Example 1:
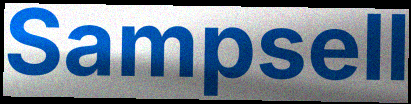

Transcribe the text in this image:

Sampsell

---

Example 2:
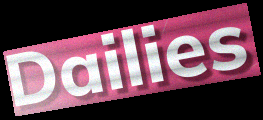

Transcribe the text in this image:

Dailies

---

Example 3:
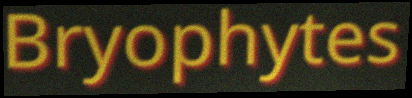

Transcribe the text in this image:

Bryophytes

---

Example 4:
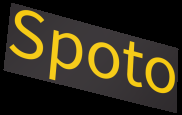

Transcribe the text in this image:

Spoto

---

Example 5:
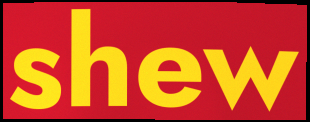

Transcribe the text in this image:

shew